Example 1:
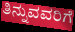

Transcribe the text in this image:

ತಿನ್ನುವವರಿಗೆ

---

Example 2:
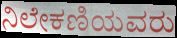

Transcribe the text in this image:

ನಿಲೇಕಣಿಯವರು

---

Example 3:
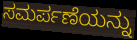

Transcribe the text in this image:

ಸಮರ್ಪಣೆಯನ್ನು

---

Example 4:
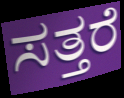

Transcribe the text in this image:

ಸತ್ತರೆ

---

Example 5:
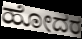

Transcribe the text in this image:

ಹೋದರ